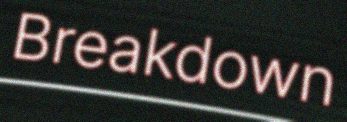
Breakdown